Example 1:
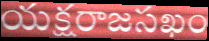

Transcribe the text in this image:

యక్షరాజసఖం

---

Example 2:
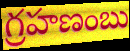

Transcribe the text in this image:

గ్రహణంబు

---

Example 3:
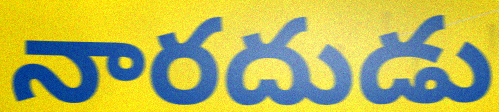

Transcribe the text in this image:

నారదుడు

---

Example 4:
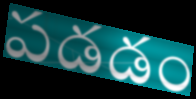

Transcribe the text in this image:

పడడం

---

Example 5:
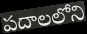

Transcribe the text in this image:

పదాలలోని